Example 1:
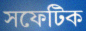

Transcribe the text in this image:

সফেটিক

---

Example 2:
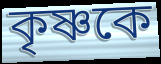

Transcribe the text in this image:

কৃষ্ণকে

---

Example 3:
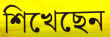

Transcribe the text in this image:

শিখেছেন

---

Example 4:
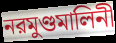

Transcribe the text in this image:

নরমুণ্ডমালিনী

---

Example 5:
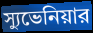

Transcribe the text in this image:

স্যুভেনিয়ার